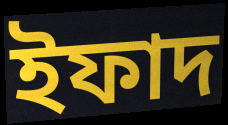
ইফাদ